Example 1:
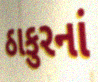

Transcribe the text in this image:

ઠાકુરનાં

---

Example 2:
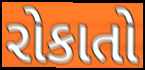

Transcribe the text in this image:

રોકાતો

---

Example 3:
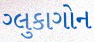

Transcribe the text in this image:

ગ્લુકાગોન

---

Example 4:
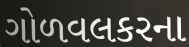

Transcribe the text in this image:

ગોળવલકરના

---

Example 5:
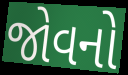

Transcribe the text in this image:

જોવનો